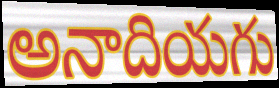
అనాదియగు